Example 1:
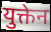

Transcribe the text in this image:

युक्तेन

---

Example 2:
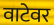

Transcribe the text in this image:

वाटेवर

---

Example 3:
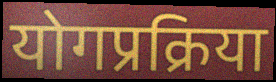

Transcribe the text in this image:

योगप्रक्रिया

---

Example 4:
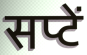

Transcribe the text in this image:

सप्टें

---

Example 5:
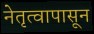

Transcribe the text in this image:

नेतृत्वापासून